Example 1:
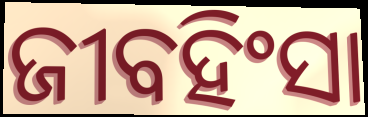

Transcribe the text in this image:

ଜୀବହିଂସା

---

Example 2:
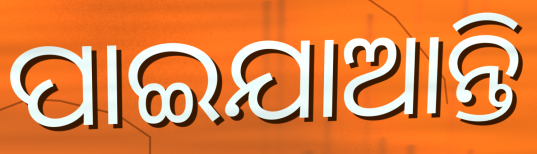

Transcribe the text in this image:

ପାଇଯାଆନ୍ତି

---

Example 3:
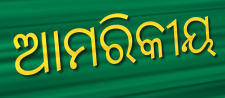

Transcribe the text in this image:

ଆମରିକୀୟ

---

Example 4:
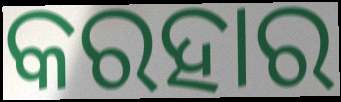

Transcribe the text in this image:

କରହାର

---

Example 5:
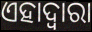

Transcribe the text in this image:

ଏହାଦ୍ୱାରା